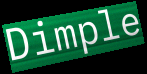
Dimple